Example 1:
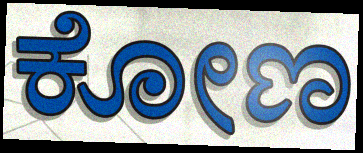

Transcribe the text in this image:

ಕೋಣ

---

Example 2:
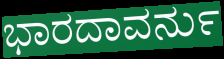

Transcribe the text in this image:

ಭಾರದಾವರ್ನು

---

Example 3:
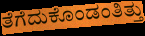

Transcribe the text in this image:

ತೆಗೆದುಕೊಂಡಂತಿತ್ತು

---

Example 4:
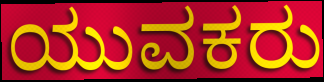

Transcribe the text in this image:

ಯುವಕರು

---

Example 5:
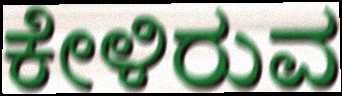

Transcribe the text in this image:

ಕೇಳಿರುವ